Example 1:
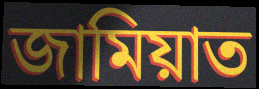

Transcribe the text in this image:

জামিয়াত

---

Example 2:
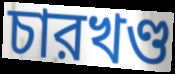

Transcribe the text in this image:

চারখণ্ড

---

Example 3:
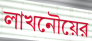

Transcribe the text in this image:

লাখনৌয়ের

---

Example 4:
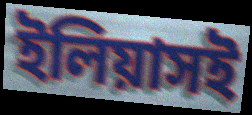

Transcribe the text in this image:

ইলিয়াসই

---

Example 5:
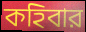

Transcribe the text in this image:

কহিবার